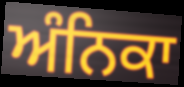
ਅੰਨਿਕਾ